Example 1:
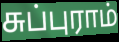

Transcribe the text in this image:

சுப்புராம்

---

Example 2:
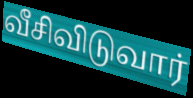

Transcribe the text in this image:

வீசிவிடுவார்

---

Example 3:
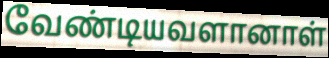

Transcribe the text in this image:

வேண்டியவளானாள்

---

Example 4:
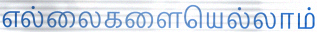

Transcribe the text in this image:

எல்லைகளையெல்லாம்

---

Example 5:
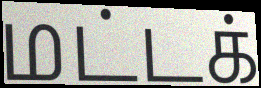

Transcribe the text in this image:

மட்டக்